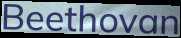
Beethovan